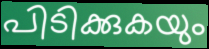
പിടിക്കുകയും